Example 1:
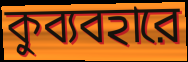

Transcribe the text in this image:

কুব্যবহারে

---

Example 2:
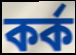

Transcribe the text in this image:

কর্ক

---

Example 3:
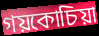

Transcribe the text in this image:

গয়কোচিয়া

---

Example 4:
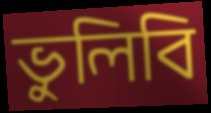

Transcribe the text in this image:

ভুলিবি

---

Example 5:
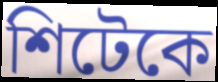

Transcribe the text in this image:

শিটেকে